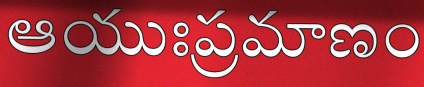
ఆయుఃప్రమాణం